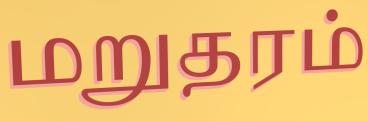
மறுதரம்